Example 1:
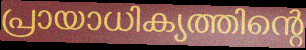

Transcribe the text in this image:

പ്രായാധിക്യത്തിന്റെ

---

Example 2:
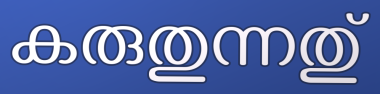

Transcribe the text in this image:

കരുതുന്നതു്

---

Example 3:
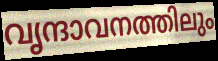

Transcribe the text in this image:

വൃന്ദാവനത്തിലും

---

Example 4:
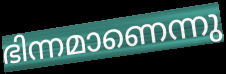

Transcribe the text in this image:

ഭിന്നമാണെന്നു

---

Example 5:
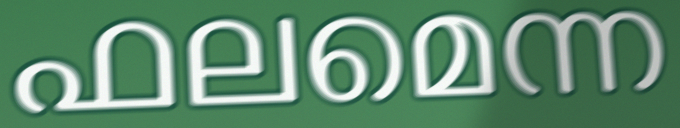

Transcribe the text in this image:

ഫലമെന്ന